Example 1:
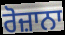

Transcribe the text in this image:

ਰੋਜ਼ਾਨਾ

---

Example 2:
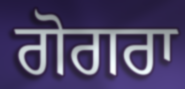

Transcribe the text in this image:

ਗੋਗਰਾ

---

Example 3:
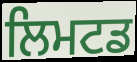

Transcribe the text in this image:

ਲਿਮਟਡ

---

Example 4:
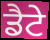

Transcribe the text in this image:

ਡੈਟੇ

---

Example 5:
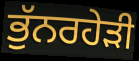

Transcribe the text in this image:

ਭੁੱਨਰਹੇੜੀ